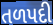
તળપદી